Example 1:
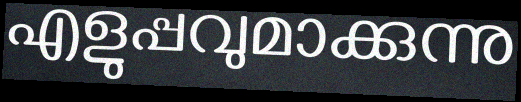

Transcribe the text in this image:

എളുപ്പവുമാക്കുന്നു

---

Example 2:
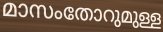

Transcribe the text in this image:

മാസംതോറുമുള്ള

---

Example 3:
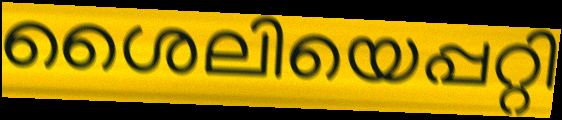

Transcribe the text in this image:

ശൈലിയെപ്പറ്റി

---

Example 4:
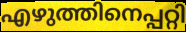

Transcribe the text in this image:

എഴുത്തിനെപ്പറ്റി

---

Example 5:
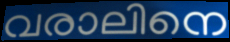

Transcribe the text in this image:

വരാലിനെ